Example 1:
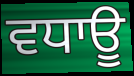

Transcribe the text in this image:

ਵਧਾਊ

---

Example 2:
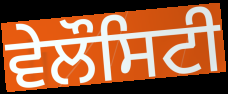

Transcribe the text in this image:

ਵੇਲੌਸਿਟੀ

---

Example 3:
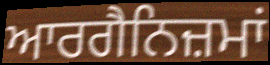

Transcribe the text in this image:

ਆਰਗੈਨਿਜ਼ਮਾਂ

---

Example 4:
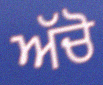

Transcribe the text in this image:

ਅੱਚੋ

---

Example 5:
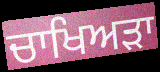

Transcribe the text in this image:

ਚਾਖਿਅੜਾ